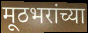
मूठभरांच्या